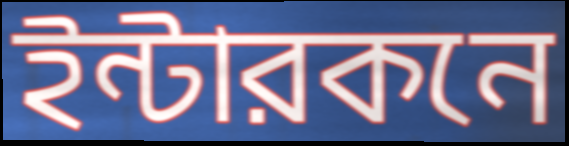
ইন্টারকনে